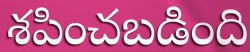
శపించబడింది